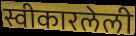
स्वीकारलेली